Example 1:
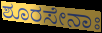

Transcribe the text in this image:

ಶೂರಸೇನಾಃ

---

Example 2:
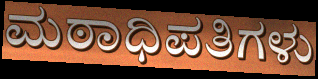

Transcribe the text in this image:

ಮಠಾಧಿಪತಿಗಳು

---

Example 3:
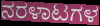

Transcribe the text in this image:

ನರಳಾಟಗಳ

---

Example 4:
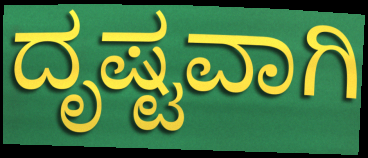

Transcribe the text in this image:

ದೃಷ್ಟವಾಗಿ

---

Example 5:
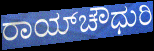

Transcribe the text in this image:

ರಾಯ್‌ಚೌಧುರಿ